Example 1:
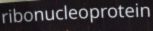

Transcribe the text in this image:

ribonucleoprotein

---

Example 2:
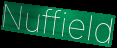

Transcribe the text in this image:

Nuffield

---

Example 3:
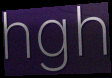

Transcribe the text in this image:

hgh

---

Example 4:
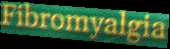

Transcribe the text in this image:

Fibromyalgia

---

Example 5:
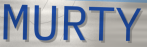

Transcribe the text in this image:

MURTY